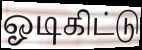
ஓடிகிட்டு